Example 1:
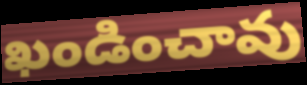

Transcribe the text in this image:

ఖండించావు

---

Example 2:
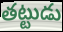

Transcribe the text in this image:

తట్టుడు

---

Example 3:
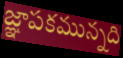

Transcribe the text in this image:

జ్ఞాపకమున్నది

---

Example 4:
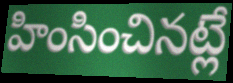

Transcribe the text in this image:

హింసించినట్లే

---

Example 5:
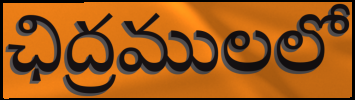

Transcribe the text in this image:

ఛిద్రములలో